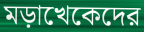
মড়াখেকেদের